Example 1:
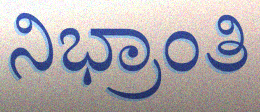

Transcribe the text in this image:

ನಿಭ್ರಾಂತಿ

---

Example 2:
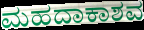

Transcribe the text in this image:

ಮಹದಾಕಾಶವ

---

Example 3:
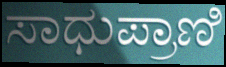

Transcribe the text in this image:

ಸಾಧುಪ್ರಾಣಿ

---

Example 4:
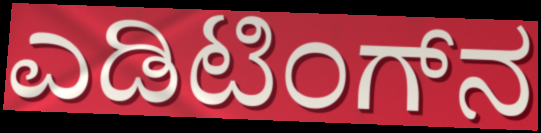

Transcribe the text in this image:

ಎಡಿಟಿಂಗ್‌ನ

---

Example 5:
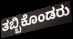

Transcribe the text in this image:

ತಬ್ಬಿಕೊಂಡರು